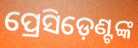
ପ୍ରେସିଡ଼େଣ୍ଟଙ୍କ